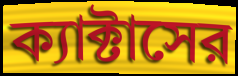
ক্যাক্টাসের